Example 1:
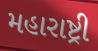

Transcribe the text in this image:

મહારાષ્ટ્રી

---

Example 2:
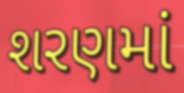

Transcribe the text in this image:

શરણમાં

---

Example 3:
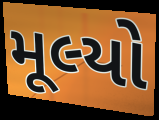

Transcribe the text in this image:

મૂલ્યો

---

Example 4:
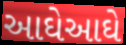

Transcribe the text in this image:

આઘેઆઘે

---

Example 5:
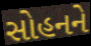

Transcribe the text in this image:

સોહનને